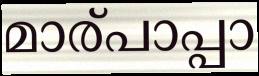
മാര്പാപ്പാ